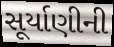
સૂર્યાણીની